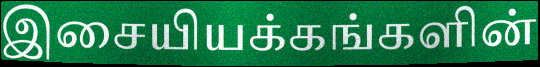
இசையியக்கங்களின்